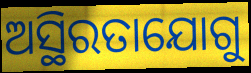
ଅସ୍ଥିରତାଯୋଗୁ